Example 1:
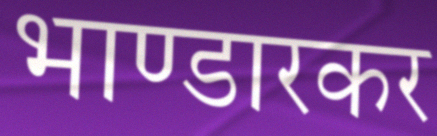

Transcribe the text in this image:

भाण्डारकर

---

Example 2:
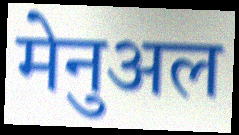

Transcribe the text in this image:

मेनुअल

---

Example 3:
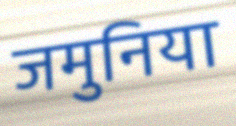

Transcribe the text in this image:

जमुनिया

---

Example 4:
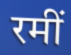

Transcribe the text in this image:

रमीं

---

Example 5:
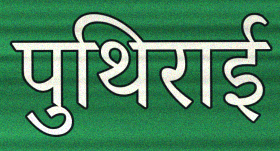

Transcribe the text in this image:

पुथिराई